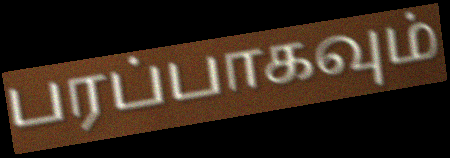
பரப்பாகவும்